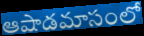
ఆషాడమాసంలో